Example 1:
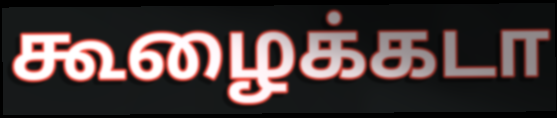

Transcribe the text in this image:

கூழைக்கடா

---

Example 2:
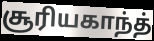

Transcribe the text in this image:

சூரியகாந்த்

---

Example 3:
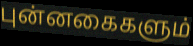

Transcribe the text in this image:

புன்னகைகளும்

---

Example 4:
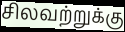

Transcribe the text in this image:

சிலவற்றுக்கு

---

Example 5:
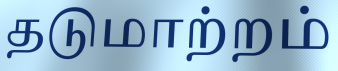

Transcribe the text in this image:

தடுமாற்றம்